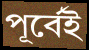
পূৰ্বেই